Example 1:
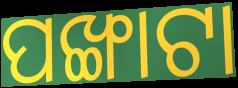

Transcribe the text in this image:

ପଙ୍ଖାଟା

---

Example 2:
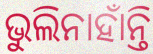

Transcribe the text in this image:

ଭୁଲିନାହାଁନ୍ତି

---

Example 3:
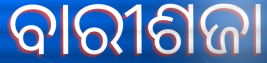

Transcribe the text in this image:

ବାରୀଶଜା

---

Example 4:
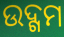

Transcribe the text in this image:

ଉଦ୍ଗମ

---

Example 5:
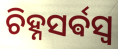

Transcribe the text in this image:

ଚିହ୍ନସର୍ଵସ୍ଵ